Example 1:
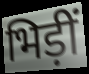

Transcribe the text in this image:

भिड़ीं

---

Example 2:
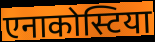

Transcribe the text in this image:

एनाकोस्टिया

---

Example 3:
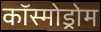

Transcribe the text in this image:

कॉस्मोड्रोम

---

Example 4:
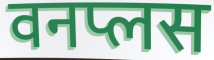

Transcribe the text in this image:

वनप्लस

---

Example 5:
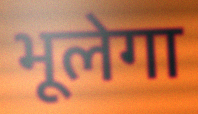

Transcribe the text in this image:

भूलेगा